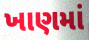
ખાણમાં